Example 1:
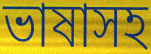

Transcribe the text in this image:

ভাষাসহ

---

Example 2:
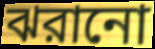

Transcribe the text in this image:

ঝরানো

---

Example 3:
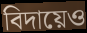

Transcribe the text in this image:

বিদায়েও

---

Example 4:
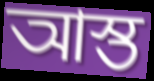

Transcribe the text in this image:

আস্ত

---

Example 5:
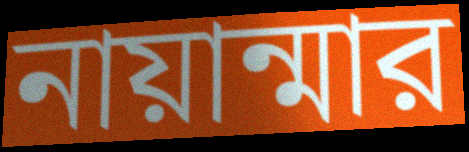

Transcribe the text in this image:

নায়ান্মার